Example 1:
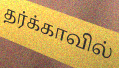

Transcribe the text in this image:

தர்க்காவில்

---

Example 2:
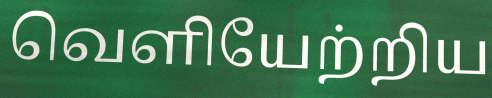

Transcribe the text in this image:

வெளியேற்றிய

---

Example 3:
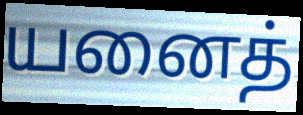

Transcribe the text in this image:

யனைத்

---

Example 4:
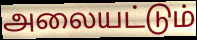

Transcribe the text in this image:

அலையட்டும்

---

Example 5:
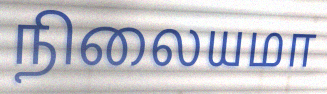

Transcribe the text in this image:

நிலையமா